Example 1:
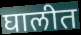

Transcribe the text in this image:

घालीत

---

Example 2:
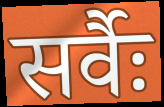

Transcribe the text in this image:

सर्वैः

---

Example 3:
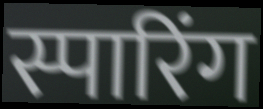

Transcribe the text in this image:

स्पारिंग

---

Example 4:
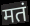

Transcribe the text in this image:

मतं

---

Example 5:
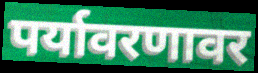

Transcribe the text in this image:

पर्यावरणावर